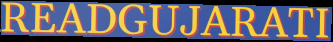
READGUJARATI